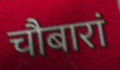
चौबारां